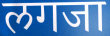
लगजा